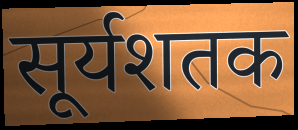
सूर्यशतक